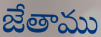
జేతాము